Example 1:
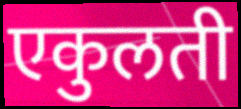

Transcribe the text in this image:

एकुलती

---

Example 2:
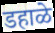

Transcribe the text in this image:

डहाळे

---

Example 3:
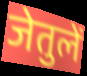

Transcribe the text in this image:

जेतुलें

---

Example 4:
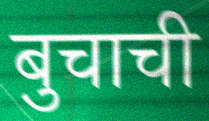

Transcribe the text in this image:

बुचाची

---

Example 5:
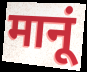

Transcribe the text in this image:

मानूं